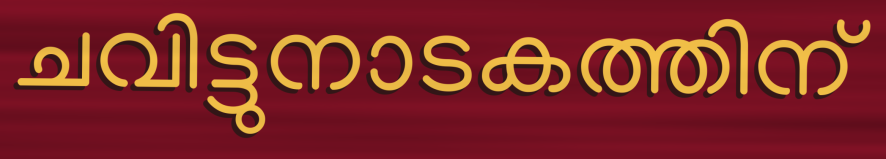
ചവിട്ടുനാടകത്തിന്